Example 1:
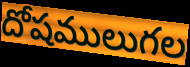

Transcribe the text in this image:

దోషములుగల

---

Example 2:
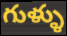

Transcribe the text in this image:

గుళ్ళు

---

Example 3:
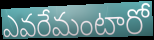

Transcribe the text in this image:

ఎవరేమంటారో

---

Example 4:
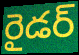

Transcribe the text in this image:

రైడర్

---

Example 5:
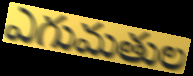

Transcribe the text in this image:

ఎగుమతుల